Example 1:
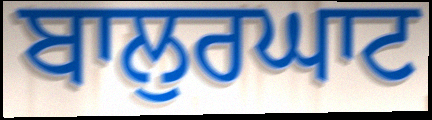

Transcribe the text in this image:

ਬਾਲੁਰਘਾਟ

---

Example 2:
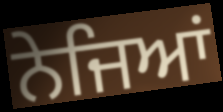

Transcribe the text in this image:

ਨੇਜਿਆਂ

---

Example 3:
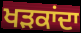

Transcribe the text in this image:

ਖੜਕਾਂਦਾ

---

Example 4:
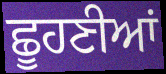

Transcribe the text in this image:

ਛੂਹਣੀਆਂ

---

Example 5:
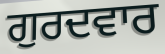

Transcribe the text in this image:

ਗੁਰਦਵਾਰ